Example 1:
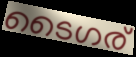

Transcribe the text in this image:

ടൈഗര്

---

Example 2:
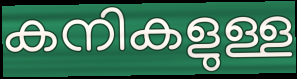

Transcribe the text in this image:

കനികളുള്ള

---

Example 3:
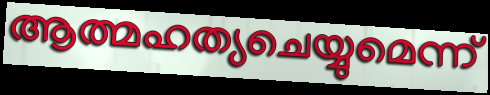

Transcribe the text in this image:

ആത്മഹത്യചെയ്യുമെന്ന്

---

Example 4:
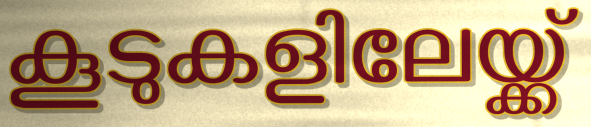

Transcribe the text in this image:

കൂടുകളിലേയ്ക്ക്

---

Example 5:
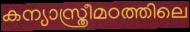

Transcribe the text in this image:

കന്യാസ്ത്രീമഠത്തിലെ